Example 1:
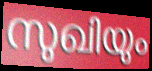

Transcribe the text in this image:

സുഖിയും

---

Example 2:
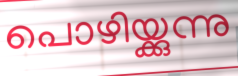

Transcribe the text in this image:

പൊഴിയ്ക്കുന്നു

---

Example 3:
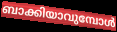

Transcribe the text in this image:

ബാക്കിയാവുമ്പോൾ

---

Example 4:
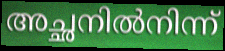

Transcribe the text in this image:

അച്ഛനിൽനിന്ന്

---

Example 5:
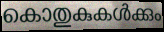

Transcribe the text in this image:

കൊതുകുകൾക്കും